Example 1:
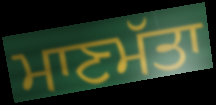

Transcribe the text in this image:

ਮਾਣਮੱਤਾ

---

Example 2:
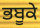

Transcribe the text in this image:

ਭਬੂਕੇ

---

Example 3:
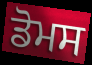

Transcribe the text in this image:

ਡੋਮਸ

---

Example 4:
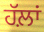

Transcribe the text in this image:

ਹੱਲ਼ਾਂ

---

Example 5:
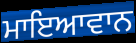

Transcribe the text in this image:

ਮਾਇਆਵਾਨ